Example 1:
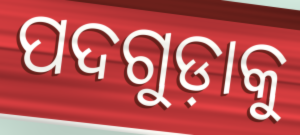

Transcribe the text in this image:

ପଦଗୁଡ଼ାକୁ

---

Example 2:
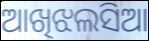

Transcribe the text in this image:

ଆଖିଝଲସିଆ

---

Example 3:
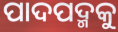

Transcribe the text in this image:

ପାଦପଦ୍ମକୁ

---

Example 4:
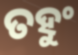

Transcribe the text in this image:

ତହୁଂ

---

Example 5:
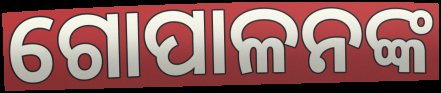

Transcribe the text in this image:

ଗୋପାଳନଙ୍କ